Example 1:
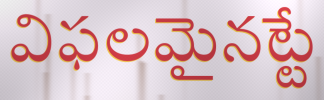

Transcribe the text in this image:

విఫలమైనట్టే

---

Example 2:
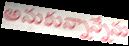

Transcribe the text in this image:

అనుకున్నాన్నేను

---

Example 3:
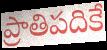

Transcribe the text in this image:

ప్రాతిపదికే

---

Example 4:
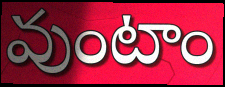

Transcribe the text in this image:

వుంటాం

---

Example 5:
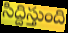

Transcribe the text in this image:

సిద్దిస్తుంది